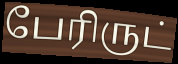
பேரிருட்